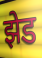
झेड